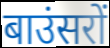
बाउंसरों